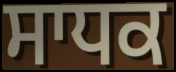
ਸਾਧਕ